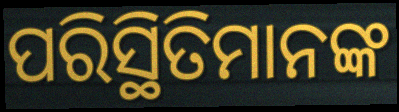
ପରିସ୍ଥିତିମାନଙ୍କ